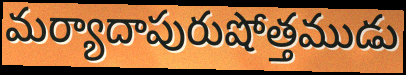
మర్యాదాపురుషోత్తముడు